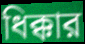
ধিক্কার